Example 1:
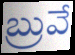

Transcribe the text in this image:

బ్రువే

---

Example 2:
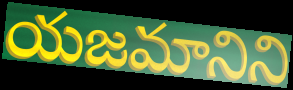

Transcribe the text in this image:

యజమానిని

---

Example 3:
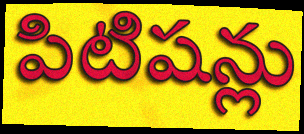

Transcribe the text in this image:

పిటిషన్లు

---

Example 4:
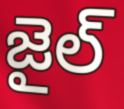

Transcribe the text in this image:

జైల్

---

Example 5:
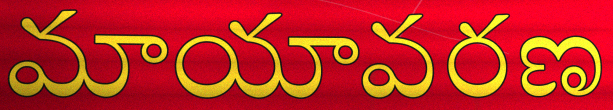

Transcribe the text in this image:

మాయావరణ